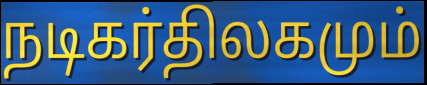
நடிகர்திலகமும்